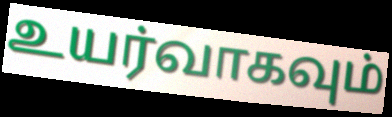
உயர்வாகவும்